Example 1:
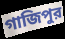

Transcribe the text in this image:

গাজিপুর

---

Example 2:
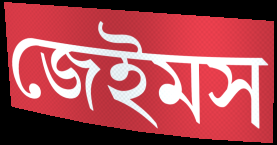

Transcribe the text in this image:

জেইমস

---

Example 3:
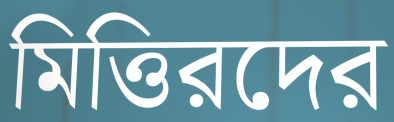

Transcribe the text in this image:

মিত্তিরদের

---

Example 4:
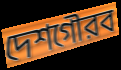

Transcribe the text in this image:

দেশগৌরব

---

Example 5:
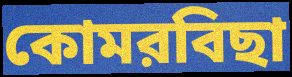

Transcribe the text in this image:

কোমরবিছা